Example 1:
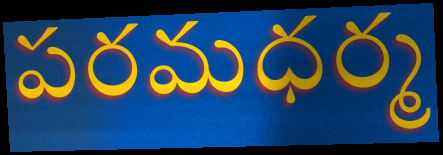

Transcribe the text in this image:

పరమధర్మ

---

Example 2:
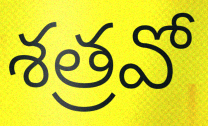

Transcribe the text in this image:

శత్రవో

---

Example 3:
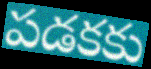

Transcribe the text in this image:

పడకకు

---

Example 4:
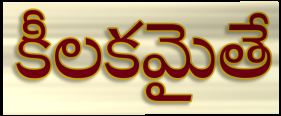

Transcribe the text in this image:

కీలకమైతే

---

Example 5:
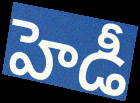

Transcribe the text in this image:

హెడీ